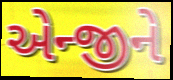
એન્જીને